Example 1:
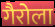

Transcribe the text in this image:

गैरोला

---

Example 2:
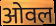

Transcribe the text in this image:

ओवल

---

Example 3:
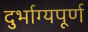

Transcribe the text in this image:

दुर्भाग्यपूर्ण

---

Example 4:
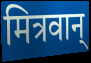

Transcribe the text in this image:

मित्रवान्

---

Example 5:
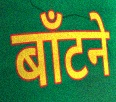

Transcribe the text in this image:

बाँटने